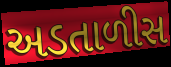
અડતાળીસ